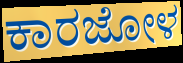
ಕಾರಜೋಳ